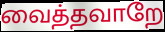
வைத்தவாறே